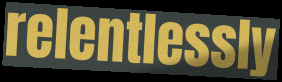
relentlessly